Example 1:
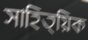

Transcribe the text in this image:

সাহিত্য়িক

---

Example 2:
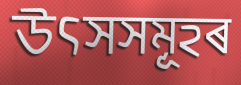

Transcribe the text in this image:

উৎসসমূহৰ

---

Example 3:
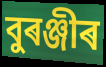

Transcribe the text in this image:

বুৰঞ্জীৰ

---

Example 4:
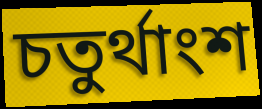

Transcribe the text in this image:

চতুৰ্থাংশ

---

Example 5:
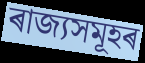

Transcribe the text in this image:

ৰাজ্যসমূহৰ